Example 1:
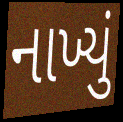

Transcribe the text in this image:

નાખ્યું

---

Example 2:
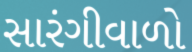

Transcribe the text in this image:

સારંગીવાળો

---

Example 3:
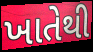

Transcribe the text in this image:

ખાતેથી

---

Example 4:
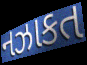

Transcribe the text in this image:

નઝાકત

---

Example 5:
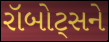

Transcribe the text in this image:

રૉબોટ્સને